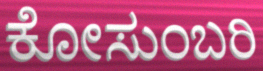
ಕೋಸುಂಬರಿ